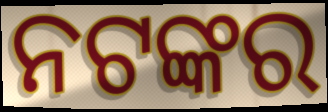
ନଟଙ୍କର